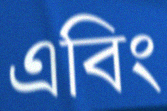
এবিং